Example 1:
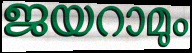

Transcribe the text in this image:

ജയറാമും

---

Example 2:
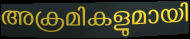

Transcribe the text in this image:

അക്രമികളുമായി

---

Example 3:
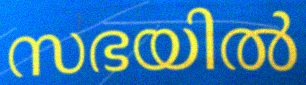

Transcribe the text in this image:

സഭയിൽ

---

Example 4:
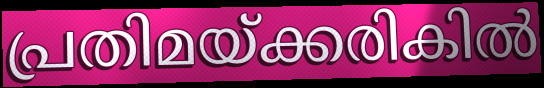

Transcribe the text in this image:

പ്രതിമയ്ക്കരികിൽ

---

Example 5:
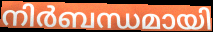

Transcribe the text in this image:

നിർബന്ധമായി